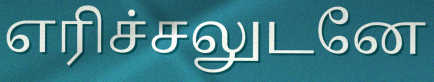
எரிச்சலுடனே